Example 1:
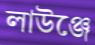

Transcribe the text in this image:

লাউঞ্জে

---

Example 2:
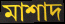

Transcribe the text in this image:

মাশাদ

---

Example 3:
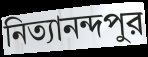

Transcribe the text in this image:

নিত্যানন্দপুর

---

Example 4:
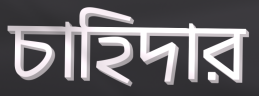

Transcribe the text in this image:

চাহিদার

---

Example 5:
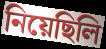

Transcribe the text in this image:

নিয়েছিলি